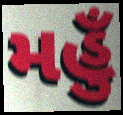
મહુઁ